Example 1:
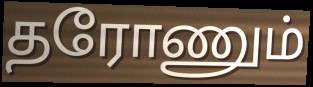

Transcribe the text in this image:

தரோணும்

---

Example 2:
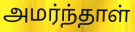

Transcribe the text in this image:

அமர்ந்தாள்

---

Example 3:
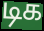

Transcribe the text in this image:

டிக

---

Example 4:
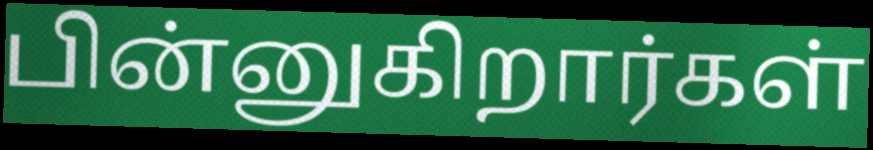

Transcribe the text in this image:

பின்னுகிறார்கள்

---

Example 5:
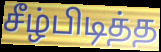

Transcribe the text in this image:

சீழ்பிடித்த